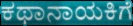
ಕಥಾನಾಯಕಿಗೆ